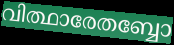
വിത്ഥാരേതബ്ബോ